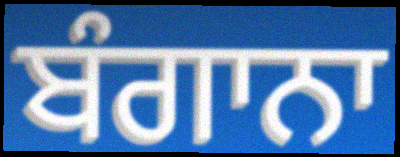
ਬੰਗਾਨਾ